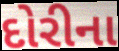
દોરીના